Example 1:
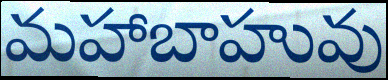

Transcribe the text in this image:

మహాబాహువు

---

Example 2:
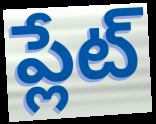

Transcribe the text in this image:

ప్లేట్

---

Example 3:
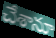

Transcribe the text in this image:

చేశానూ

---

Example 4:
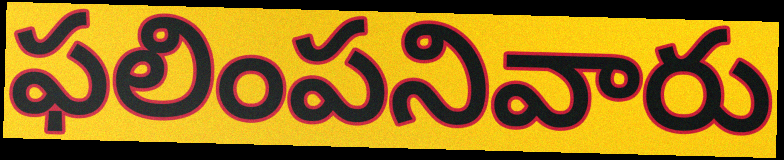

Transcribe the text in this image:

ఫలింపనివారు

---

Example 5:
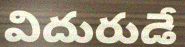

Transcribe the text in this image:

విదురుడే